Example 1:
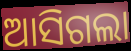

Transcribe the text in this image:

ଆସିଗଲା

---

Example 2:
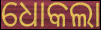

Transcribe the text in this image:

ଧୋକଲା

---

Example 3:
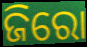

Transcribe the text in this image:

ଜିରୋ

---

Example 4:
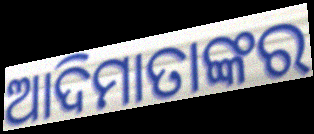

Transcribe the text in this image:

ଆଦିମାତାଙ୍କର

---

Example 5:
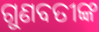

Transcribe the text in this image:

ଗୁଣବତୀଙ୍କ